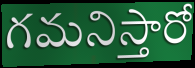
గమనిస్తారో